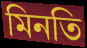
মিনতি